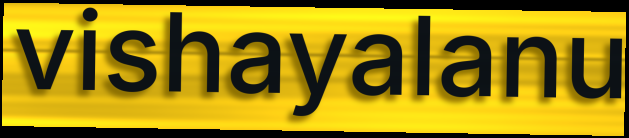
vishayalanu